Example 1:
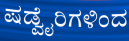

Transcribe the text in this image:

ಷಡ್ವೈರಿಗಳಿಂದ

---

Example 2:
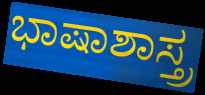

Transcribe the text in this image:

ಭಾಷಾಶಾಸ್ತ್ರ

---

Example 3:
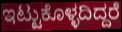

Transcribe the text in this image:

ಇಟ್ಟುಕೊಳ್ಳದಿದ್ದರೆ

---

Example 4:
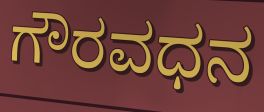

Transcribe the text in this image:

ಗೌರವಧನ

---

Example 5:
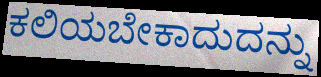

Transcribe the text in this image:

ಕಲಿಯಬೇಕಾದುದನ್ನು